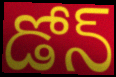
డోన్